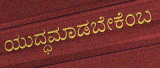
ಯುದ್ಧಮಾಡಬೇಕೆಂಬ